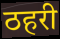
ठहरी